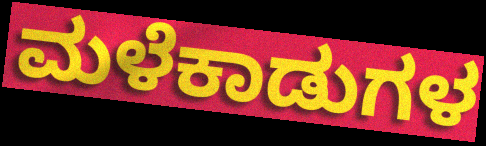
ಮಳೆಕಾಡುಗಳ